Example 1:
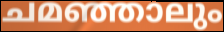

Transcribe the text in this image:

ചമഞ്ഞാലും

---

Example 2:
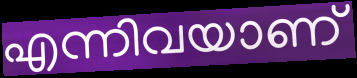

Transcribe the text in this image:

എന്നിവയാണ്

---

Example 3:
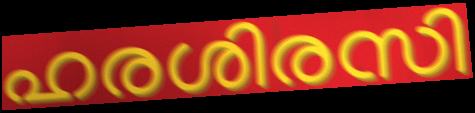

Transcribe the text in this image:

ഹരശിരസി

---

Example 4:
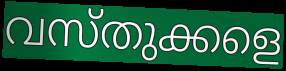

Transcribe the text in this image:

വസ്തുക്കളെ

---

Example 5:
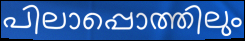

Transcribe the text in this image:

പിലാപ്പൊത്തിലും